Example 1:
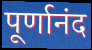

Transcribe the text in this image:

पूर्णानंद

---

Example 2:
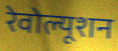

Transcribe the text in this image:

रेवोल्यूशन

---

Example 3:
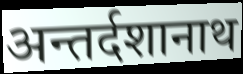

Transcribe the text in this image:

अन्तर्दशानाथ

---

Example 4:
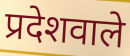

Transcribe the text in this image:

प्रदेशवाले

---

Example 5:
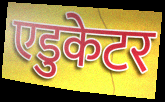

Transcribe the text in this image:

एडुकेटर